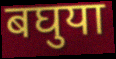
बघुया